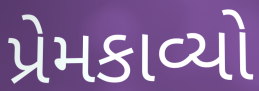
પ્રેમકાવ્યો